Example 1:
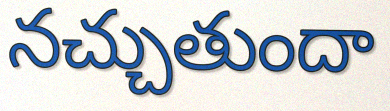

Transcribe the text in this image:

నచ్చుతుందా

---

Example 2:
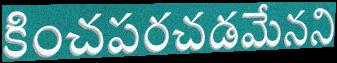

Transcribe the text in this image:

కించపరచడమేనని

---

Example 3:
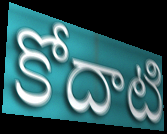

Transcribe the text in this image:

కోదాటి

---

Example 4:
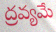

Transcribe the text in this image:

ద్రవ్యమే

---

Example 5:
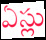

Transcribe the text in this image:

ఏస్లు